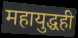
महायुद्धही